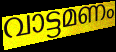
വാട്ടമണം